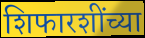
शिफारशींच्या